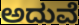
ಅದುವೆ